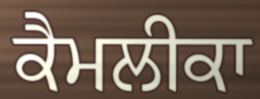
ਕੈਮਲੀਕਾ